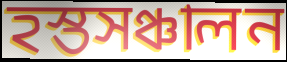
হস্তসঞ্চালন